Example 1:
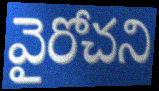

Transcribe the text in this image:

వైరోచని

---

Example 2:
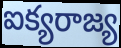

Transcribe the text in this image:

ఐక్యరాజ్య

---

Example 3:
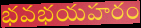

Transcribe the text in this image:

భవభయహరం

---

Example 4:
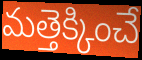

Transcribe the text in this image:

మత్తెక్కించే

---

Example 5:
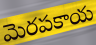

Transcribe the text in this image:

మెరపకాయ